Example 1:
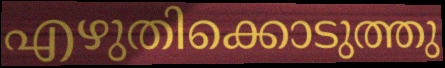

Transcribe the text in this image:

എഴുതിക്കൊടുത്തു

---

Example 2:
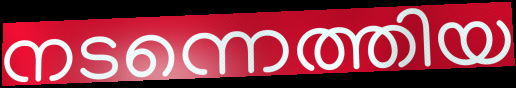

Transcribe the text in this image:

നടന്നെത്തിയ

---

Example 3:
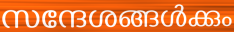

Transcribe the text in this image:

സന്ദേശങ്ങൾക്കും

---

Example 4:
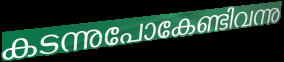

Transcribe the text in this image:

കടന്നുപോകേണ്ടിവന്നു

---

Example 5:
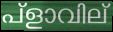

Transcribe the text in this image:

പ്ളാവില്